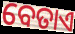
ବେତାଏ